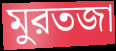
মুরতজা